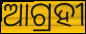
ଆଗ୍ରହୀ